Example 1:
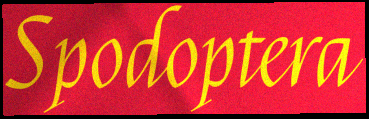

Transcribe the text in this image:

Spodoptera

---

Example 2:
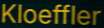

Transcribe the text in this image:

Kloeffler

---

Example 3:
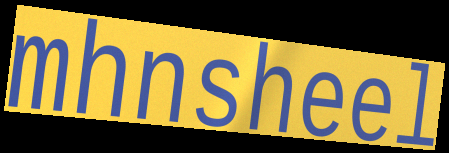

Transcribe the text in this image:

mhnsheel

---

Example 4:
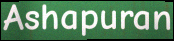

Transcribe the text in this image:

Ashapuran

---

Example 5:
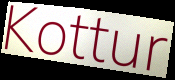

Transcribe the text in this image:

Kottur